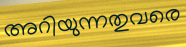
അറിയുന്നതുവരെ